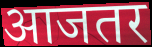
आजतर